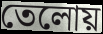
তেলোয়